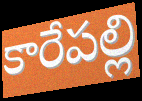
కారేపల్లి